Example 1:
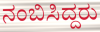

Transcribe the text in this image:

ನಂಬಿಸಿದ್ದರು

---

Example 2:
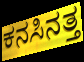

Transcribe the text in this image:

ಕನಸಿನತ್ತ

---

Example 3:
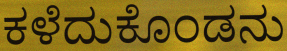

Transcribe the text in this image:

ಕಳೆದುಕೊಂಡನು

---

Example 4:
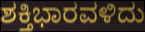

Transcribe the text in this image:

ಶಕ್ತಿಭಾರವಳಿದು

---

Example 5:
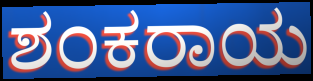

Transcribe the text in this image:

ಶಂಕರಾಯ